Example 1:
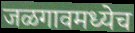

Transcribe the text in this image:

जळगावमध्येच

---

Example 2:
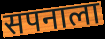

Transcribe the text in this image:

सपनाला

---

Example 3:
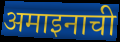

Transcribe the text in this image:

अमाइनाची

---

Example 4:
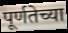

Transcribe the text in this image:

पूर्णतेच्या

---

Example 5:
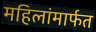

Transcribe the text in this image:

महिलांमार्फत